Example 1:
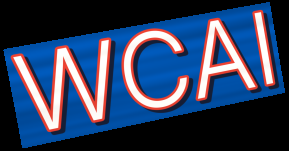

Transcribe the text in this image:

WCAI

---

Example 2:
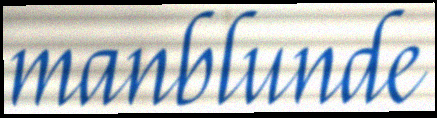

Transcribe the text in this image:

manblunde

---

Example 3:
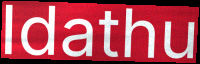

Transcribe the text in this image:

Idathu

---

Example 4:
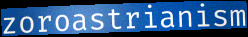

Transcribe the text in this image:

zoroastrianism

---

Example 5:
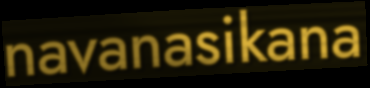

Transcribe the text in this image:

navanasikana